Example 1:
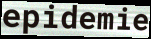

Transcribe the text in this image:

epidemie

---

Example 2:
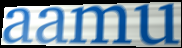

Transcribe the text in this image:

aamu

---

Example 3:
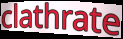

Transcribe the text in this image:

clathrate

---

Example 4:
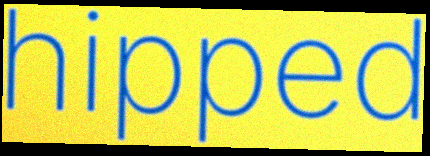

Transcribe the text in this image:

hipped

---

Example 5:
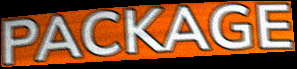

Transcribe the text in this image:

PACKAGE